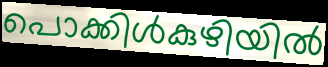
പൊക്കിൾകുഴിയിൽ